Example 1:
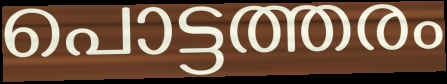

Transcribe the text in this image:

പൊട്ടത്തരം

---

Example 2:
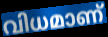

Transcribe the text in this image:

വിധമാണ്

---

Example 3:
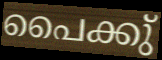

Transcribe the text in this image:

പൈക്കു്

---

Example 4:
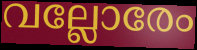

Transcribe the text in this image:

വല്ലോരേം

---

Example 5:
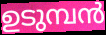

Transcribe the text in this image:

ഉടുമ്പൻ